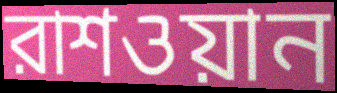
রাশওয়ান